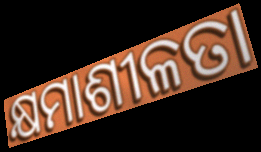
କ୍ଷମାଶୀଳତା